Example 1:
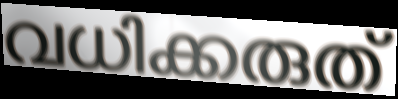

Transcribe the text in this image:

വധിക്കരുത്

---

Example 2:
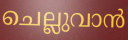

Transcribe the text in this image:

ചെല്ലുവാൻ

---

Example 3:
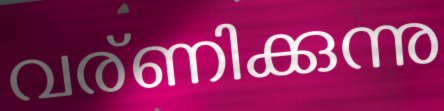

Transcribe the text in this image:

വര്ണിക്കുന്നു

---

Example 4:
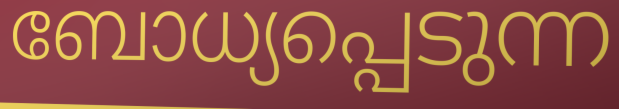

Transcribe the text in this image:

ബോധ്യപ്പെടുന്ന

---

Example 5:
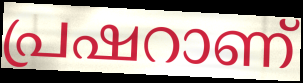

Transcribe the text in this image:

പ്രഷറാണ്